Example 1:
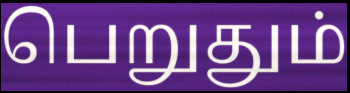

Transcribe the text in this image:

பெறுதும்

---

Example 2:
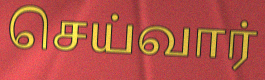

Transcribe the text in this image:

செய்வார்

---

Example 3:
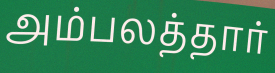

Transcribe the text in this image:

அம்பலத்தார்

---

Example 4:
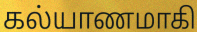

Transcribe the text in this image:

கல்யாணமாகி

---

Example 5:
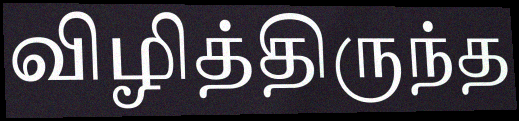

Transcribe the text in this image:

விழித்திருந்த